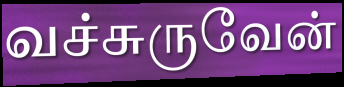
வச்சுருவேன்